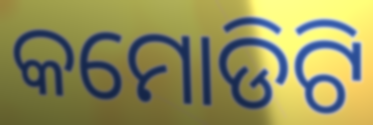
କମୋଡିଟି